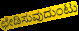
ಛೇಡಿಸುವುದುಂಟು